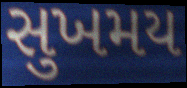
સુખમય